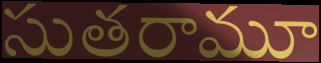
సుతరామూ